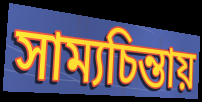
সাম্যচিন্তায়